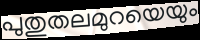
പുതുതലമുറയെയും